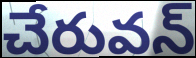
చేరువన్